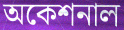
অকেশনাল